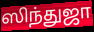
ஸிந்துஜா